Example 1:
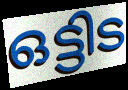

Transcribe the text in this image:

ഒട്ടിട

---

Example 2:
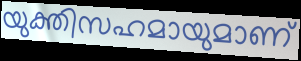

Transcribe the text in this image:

യുക്തിസഹമായുമാണ്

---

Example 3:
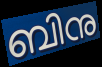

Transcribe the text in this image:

ബിനു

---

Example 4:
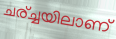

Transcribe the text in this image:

ചര്ച്ചയിലാണ്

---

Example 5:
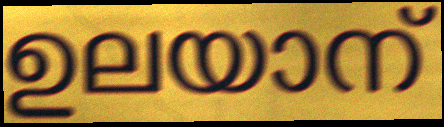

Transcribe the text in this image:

ഉലയാന്